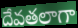
దేవతలాగా